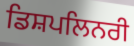
ਡਿਸ਼ਪਲਿਨਰੀ